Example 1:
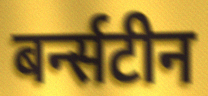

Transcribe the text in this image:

बर्न्सटीन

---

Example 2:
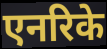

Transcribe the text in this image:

एनरिके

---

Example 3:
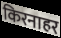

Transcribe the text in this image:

किरनाहर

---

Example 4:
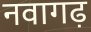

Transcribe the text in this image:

नवागढ़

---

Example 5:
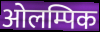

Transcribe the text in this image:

ओलम्पिक